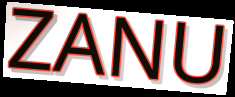
ZANU